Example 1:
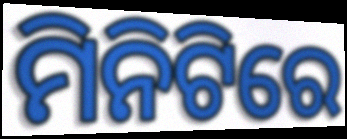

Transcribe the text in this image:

ମିନିଟିରେ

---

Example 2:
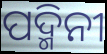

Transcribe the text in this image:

ପଦ୍ମିନୀ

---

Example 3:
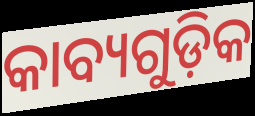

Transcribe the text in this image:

କାବ୍ୟଗୁଡ଼ିକ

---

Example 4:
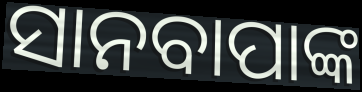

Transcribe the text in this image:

ସାନବାପାଙ୍କ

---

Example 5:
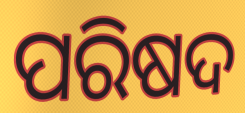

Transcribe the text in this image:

ପରିଷଦ